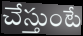
చేస్తుంటే